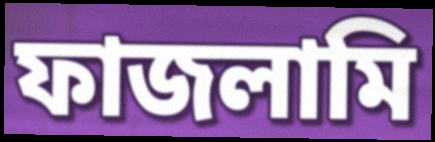
ফাজলামি